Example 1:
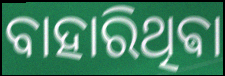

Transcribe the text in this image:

ବାହାରିଥିଵା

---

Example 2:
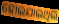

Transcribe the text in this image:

ହୋଇଯାଇଥିଲି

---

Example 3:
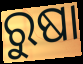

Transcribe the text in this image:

ରୁଷା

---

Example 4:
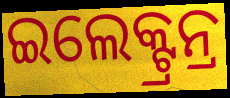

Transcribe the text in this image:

ଇଲେକ୍ଟ୍ରନ୍ର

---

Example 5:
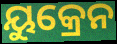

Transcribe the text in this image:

ୟୁକ୍ରେନ